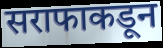
सराफाकडून